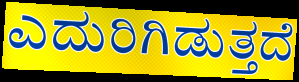
ಎದುರಿಗಿಡುತ್ತದೆ